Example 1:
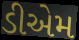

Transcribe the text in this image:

ડીએમ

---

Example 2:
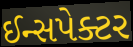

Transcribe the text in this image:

ઈન્સપેક્ટર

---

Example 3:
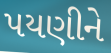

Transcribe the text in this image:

પયણીને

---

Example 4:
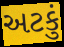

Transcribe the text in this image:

અટકું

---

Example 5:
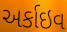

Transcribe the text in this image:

અર્કાઇવ